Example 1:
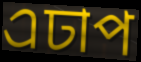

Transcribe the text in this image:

এঢাপ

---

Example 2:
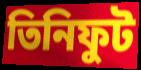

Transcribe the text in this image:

তিনিফুট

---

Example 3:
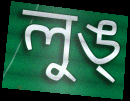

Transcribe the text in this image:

লুঙ্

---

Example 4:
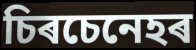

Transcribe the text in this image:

চিৰচেনেহৰ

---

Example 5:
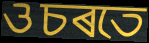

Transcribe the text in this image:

ওচৰতে